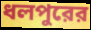
ধলপুরের